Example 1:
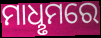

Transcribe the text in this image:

ମାଧୢମରେ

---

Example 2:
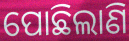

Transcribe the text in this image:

ପୋଛିଲାଣି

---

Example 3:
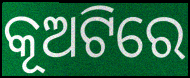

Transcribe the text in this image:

କୂଅଟିରେ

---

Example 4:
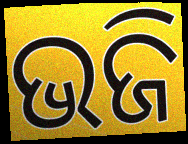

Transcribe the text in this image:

ଭଜି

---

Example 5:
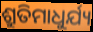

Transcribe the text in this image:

ଶ୍ରୁତିମାଧୁର୍ଯ୍ୟ